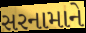
સરનામાને